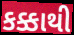
કક્કાથી